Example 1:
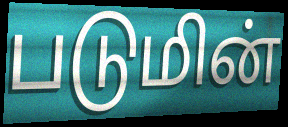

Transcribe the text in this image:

படுமின்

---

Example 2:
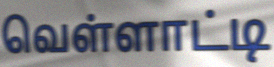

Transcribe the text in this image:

வெள்ளாட்டி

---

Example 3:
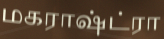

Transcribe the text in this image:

மகராஷ்ட்ரா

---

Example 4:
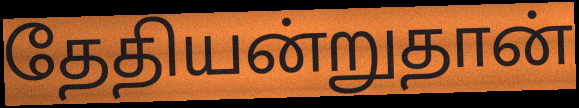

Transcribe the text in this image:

தேதியன்றுதான்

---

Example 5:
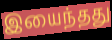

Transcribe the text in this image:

இயைந்தது